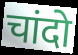
चांदो